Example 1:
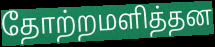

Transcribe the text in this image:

தோற்றமளித்தன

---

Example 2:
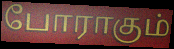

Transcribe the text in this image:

போராகும்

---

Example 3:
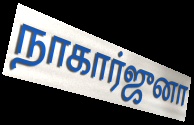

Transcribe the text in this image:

நாகார்ஜுனா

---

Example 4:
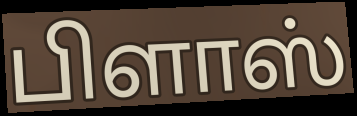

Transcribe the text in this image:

பிளாஸ்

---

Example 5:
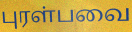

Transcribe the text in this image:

புரள்பவை